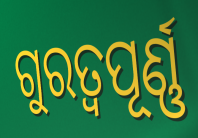
ଗୁରତ୍ୱପୂର୍ଣ୍ଣ